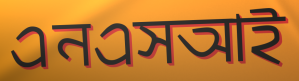
এনএসআই